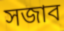
সজাব